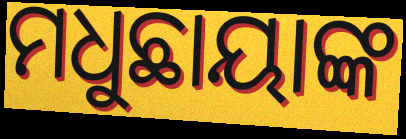
ମଧୁଛାୟାଙ୍କ